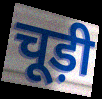
चूड़ी